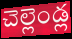
చెల్లెండ్ల